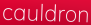
cauldron